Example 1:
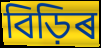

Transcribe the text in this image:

বিড়িৰ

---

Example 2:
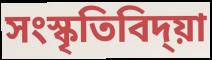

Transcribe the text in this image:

সংস্কৃতিবিদ্য়া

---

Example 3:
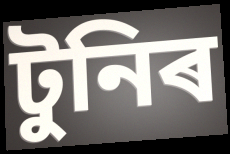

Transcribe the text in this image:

টুনিৰ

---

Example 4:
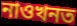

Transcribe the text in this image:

নাওখনত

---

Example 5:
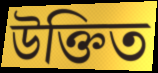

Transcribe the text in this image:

উক্তিত